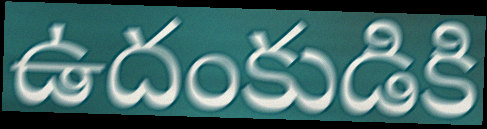
ఉదంకుడికి